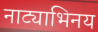
नाट्याभिनय